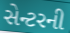
સેન્ટરની